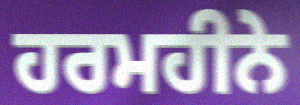
ਹਰਮਹੀਨੇ